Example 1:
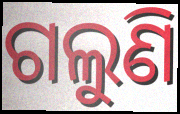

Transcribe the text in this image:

ଗଲୁଣି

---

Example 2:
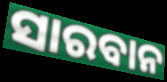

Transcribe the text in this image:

ସାରବାନ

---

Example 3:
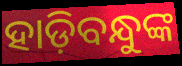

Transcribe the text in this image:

ହାଡ଼ିବନ୍ଧୁଙ୍କ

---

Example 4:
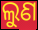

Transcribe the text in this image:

ଲୁଣ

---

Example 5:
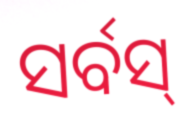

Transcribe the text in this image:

ସର୍ବସ୍